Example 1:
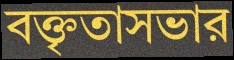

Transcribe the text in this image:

বক্তৃতাসভার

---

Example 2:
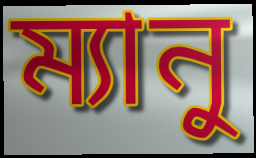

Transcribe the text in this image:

ম্যানু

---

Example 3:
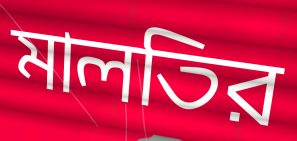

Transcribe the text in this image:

মালতির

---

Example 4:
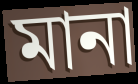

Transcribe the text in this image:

মানা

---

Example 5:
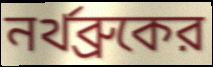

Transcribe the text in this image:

নর্থব্রুকের